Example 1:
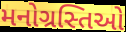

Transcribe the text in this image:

મનોગ્રસ્તિઓ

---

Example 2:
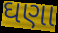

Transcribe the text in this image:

ઘણા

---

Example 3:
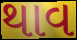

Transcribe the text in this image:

થાવ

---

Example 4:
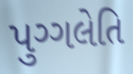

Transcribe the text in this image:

પુગ્ગલેતિ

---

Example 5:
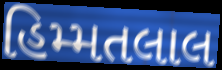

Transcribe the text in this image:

હિમ્મતલાલ